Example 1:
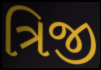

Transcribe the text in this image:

ત્રિજી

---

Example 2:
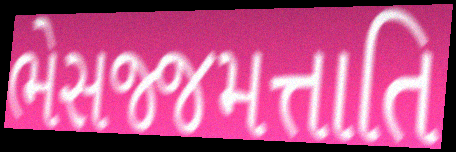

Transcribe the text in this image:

ભેસજ્જમત્તાતિ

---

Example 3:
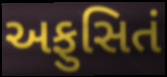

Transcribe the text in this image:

અફુસિતં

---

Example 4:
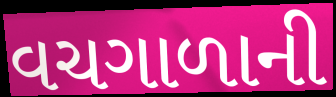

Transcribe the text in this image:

વચગાળાની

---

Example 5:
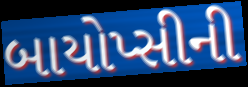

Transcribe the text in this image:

બાયોપ્સીની